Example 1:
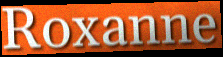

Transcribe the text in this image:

Roxanne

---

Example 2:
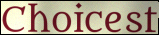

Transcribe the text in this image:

Choicest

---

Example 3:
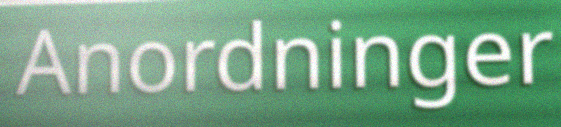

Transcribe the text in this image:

Anordninger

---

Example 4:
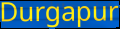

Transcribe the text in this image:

Durgapur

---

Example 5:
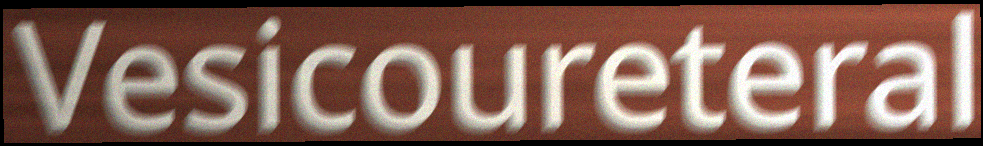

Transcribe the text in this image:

Vesicoureteral